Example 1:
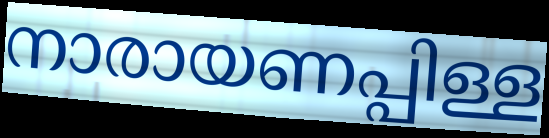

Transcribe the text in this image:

നാരായണപ്പിള്ള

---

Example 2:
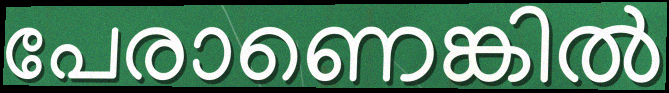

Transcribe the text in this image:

പേരാണെങ്കിൽ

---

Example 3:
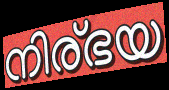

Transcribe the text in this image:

നിര്ഭയ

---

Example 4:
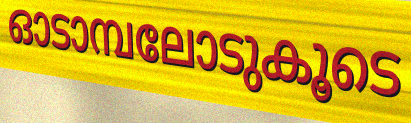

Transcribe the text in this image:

ഓടാമ്പലോടുകൂടെ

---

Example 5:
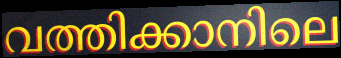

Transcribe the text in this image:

വത്തിക്കാനിലെ